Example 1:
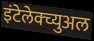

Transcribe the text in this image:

इंटेलेक्च्युअल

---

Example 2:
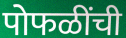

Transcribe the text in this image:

पोफळींची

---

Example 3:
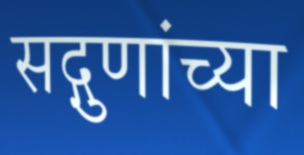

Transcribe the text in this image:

सद्गुणांच्या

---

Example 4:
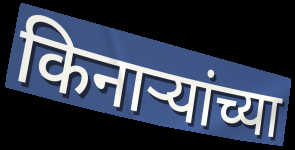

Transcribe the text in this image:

किनाऱ्यांच्या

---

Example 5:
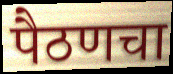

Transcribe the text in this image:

पैठणचा